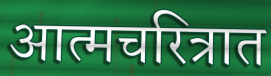
आत्मचरित्रात